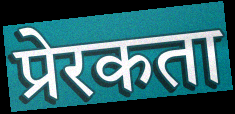
प्रेरकता